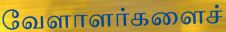
வேளாளர்களைச்